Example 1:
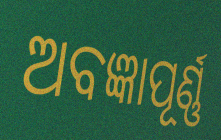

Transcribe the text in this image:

ଅବଜ୍ଞାପୂର୍ଣ୍ଣ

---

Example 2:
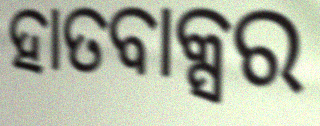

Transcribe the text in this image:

ହାତବାକ୍ସର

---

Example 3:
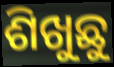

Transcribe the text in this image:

ଶିଖୁଛୁ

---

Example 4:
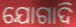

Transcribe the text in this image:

ଯୋଗାଦି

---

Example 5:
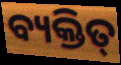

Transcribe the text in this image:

ବ୍ୟକ୍ତିତ୍